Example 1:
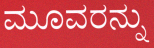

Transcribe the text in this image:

ಮೂವರನ್ನು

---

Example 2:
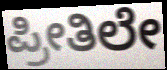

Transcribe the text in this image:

ಪ್ರೀತಿಲೇ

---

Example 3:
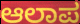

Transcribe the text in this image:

ಆಲಾಪ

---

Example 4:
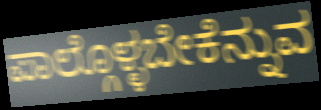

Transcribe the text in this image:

ಪಾಲ್ಗೊಳ್ಳಬೇಕೆನ್ನುವ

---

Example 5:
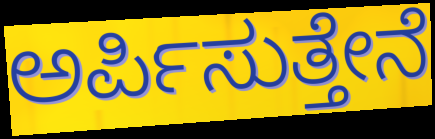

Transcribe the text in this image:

ಅರ್ಪಿಸುತ್ತೇನೆ